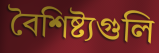
বৈশিষ্ট্যগুলি